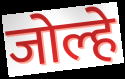
जोल्हे